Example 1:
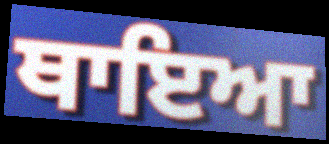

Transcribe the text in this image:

ਥਾਇਆ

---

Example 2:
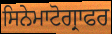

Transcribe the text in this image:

ਸਿਨੇਮਾਟੋਗ੍ਰਾਫਰ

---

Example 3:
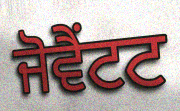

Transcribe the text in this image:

ਜੋਵੈਂਟਟ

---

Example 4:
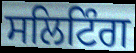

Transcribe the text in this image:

ਸਲਿਟਿੰਗ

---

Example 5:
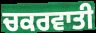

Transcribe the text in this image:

ਚਕਰਵਾਤੀ